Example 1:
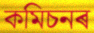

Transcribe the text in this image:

কমিচনৰ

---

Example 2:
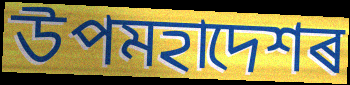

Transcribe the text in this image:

উপমহাদেশৰ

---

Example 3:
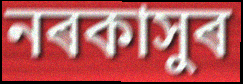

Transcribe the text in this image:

নৰকাসুৰ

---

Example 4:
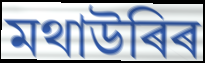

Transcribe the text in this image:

মথাউৰিৰ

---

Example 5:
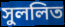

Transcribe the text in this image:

সুললিত